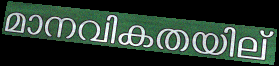
മാനവികതയില്